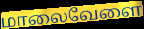
மாலைவேளை